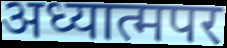
अध्यात्मपर